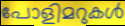
പോളിമറുകൾ